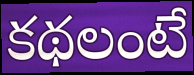
కథలంటే